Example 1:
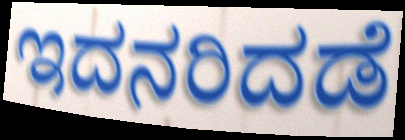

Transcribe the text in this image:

ಇದನರಿದಡೆ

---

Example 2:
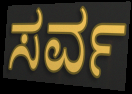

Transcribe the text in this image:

ಸರ್ವ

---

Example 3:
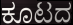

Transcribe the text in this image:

ಕೂಟದ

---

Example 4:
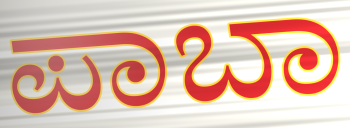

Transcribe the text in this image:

ಪಾಬಾ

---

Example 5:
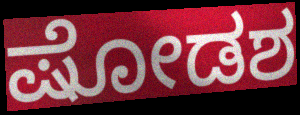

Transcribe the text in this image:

ಷೋಡಶ